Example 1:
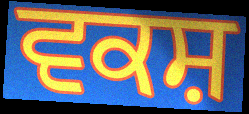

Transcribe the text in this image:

ਵਕਸ਼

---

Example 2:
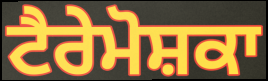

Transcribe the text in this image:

ਟੈਰੇਮੋਸ਼ਕਾ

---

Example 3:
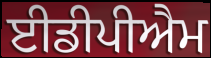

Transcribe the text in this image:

ਈਡੀਪੀਐਮ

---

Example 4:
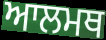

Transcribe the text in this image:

ਆਲਮਥ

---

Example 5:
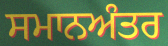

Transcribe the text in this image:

ਸਮਾਨਅੰਤਰ